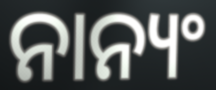
ନାନ୍ୟଂ